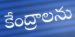
కేంద్రాలను